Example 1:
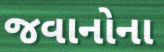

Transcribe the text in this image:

જવાનોના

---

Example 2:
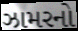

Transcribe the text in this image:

ઝામરનો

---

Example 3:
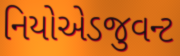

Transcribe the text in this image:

નિયોએડજુવન્ટ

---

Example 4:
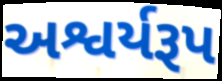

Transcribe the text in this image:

અશ્વર્યરૂપ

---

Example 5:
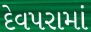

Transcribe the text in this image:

દેવપરામાં